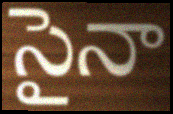
సైనా